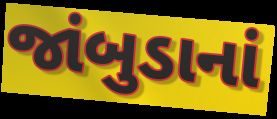
જાંબુડાનાં